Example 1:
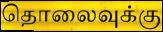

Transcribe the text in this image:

தொலைவுக்கு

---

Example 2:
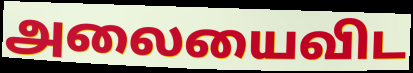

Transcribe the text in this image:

அலையைவிட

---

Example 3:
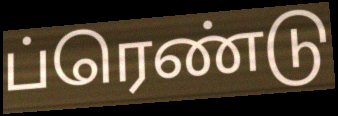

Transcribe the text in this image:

ப்ரெண்டு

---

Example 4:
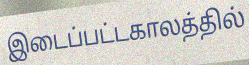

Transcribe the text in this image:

இடைப்பட்டகாலத்தில்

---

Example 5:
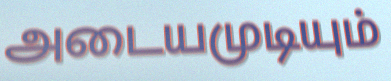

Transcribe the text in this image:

அடையமுடியும்